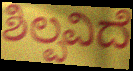
ಶಿಲ್ಪವಿದೆ